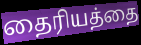
தைரியத்தை